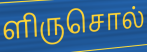
ளிருசொல்